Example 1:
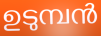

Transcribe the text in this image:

ഉടുമ്പൻ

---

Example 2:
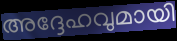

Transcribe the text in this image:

അദ്ദേഹവുമായി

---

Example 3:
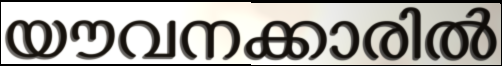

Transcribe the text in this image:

യൗവനക്കാരിൽ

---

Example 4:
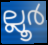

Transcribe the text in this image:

ല്ലൂർ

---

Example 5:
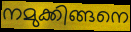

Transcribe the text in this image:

നമുക്കിങ്ങനെ